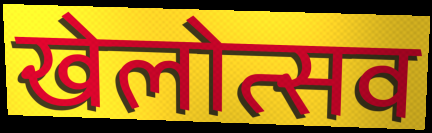
खेलोत्सव